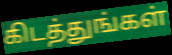
கிடத்துங்கள்